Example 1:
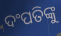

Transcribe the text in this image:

ଦଂପତିଙ୍କୁ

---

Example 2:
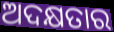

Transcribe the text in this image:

ଅଦକ୍ଷତାର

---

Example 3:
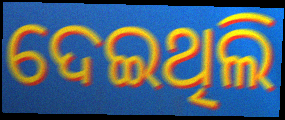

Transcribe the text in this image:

ଦେଇଥିଲି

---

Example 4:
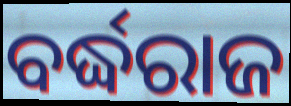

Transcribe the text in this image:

ବର୍ଦ୍ଧରାଜ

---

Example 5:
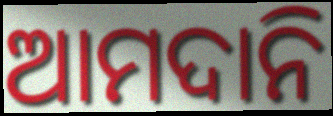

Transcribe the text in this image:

ଆମଦାନି